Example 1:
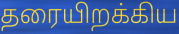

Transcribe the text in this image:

தரையிறக்கிய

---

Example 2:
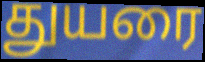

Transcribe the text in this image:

துயரை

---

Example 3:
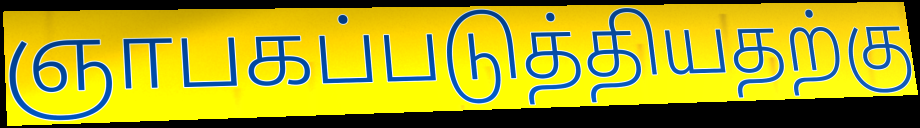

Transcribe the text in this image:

ஞாபகப்படுத்தியதற்கு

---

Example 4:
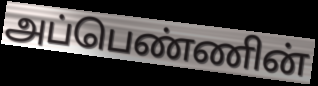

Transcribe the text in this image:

அப்பெண்ணின்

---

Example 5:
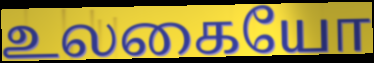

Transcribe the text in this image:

உலகையோ